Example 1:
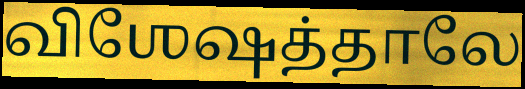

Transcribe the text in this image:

விஶேஷத்தாலே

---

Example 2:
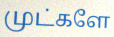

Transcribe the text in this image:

முட்களே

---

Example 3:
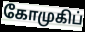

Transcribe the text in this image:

கோமுகிப்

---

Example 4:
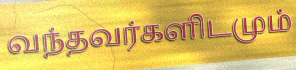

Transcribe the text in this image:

வந்தவர்களிடமும்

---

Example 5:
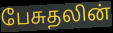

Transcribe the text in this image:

பேசுதலின்